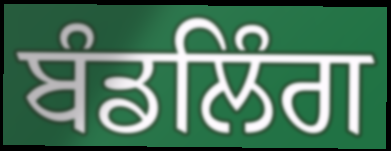
ਬੰਡਲਿੰਗ